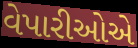
વેપારીઓએ